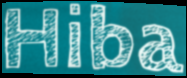
Hiba